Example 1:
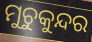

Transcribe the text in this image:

ମୁଚୁକୁନ୍ଦର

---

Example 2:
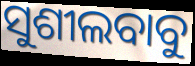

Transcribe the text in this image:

ସୁଶୀଲବାବୁ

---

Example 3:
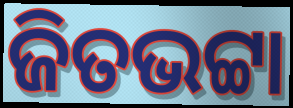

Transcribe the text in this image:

ଜିତଭଟ୍ଟା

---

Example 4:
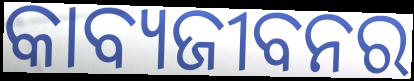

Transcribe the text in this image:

କାବ୍ୟଜୀବନର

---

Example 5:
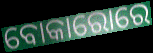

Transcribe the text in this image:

ବୋକାରୋରେ